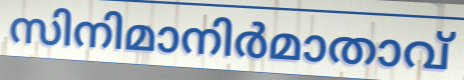
സിനിമാനിർമാതാവ്